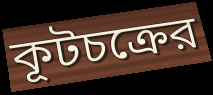
কূটচক্রের